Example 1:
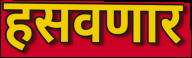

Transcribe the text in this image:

हसवणार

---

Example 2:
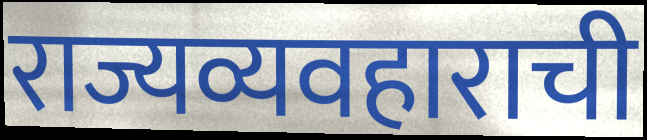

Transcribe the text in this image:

राज्यव्यवहाराची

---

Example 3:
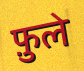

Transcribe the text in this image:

फ़ुले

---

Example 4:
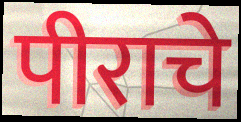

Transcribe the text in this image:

पीराचे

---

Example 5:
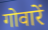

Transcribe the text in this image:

गोवारें